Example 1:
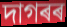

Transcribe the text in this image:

দাগৰৰ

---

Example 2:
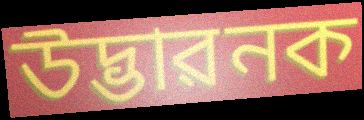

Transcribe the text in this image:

উদ্ভাৱনক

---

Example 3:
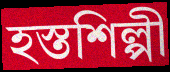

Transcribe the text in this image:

হস্তশিল্পী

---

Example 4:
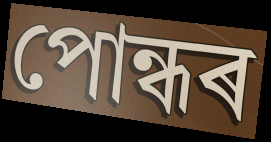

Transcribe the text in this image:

পোন্ধৰ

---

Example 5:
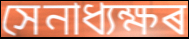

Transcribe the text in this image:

সেনাধ্যক্ষৰ